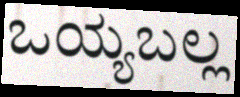
ಒಯ್ಯಬಲ್ಲ